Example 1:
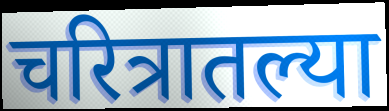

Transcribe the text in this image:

चरित्रातल्या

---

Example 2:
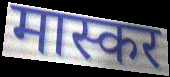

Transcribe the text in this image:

मास्कर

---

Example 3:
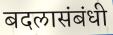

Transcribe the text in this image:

बदलासंबंधी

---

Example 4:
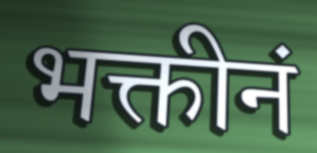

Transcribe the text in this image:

भक्तीनं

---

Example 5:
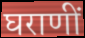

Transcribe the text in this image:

घराणीं